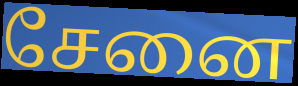
சேனை